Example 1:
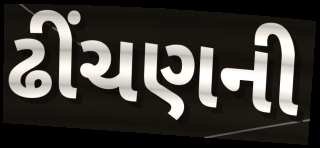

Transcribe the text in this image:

ઢીંચણની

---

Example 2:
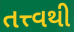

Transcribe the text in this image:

તત્ત્વથી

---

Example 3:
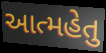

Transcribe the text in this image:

આત્મહેતુ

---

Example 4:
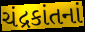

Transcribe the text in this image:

ચંદ્રકાંતનાં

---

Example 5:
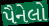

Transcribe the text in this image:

પૈનેલો